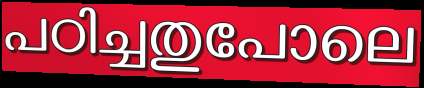
പഠിച്ചതുപോലെ